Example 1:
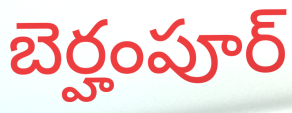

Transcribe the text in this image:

బెర్హంపూర్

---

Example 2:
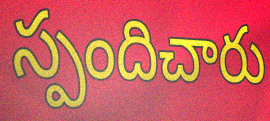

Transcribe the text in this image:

స్పందిచారు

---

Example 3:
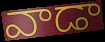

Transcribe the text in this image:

వాడా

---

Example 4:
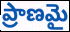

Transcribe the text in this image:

ప్రాణమై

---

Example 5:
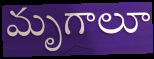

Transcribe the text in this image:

మృగాలూ